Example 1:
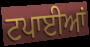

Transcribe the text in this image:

ਟਪਾਈਆਂ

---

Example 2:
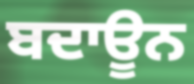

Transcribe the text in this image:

ਬਦਾਊਨ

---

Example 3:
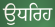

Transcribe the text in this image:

ਉਧਰਿਹ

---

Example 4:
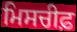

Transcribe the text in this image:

ਮਿਸਚੀਫ਼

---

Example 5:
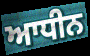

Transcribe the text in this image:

ਆਧੀਨ